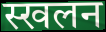
स्खलन